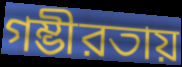
গম্ভীরতায়